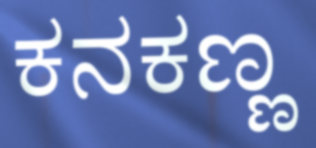
ಕನಕಣ್ಣ